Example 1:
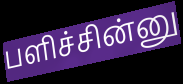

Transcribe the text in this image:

பளிச்சின்னு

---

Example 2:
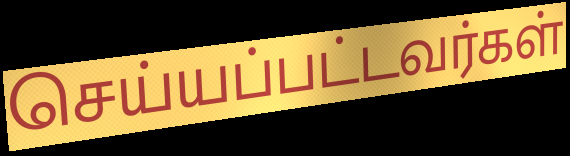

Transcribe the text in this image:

செய்யப்பட்டவர்கள்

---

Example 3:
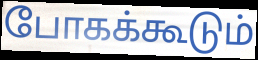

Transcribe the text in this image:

போகக்கூடும்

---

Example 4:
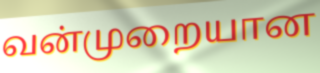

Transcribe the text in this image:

வன்முறையான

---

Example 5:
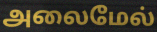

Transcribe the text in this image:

அலைமேல்